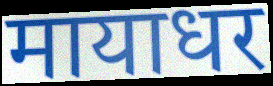
मायाधर